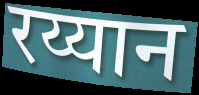
रय्यान